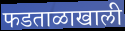
फडताळाखाली